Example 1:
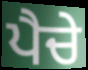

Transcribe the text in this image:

ਪੈਚੇ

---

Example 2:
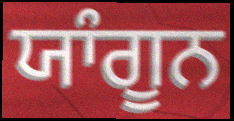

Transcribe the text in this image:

ਯਾੰਗੂਨ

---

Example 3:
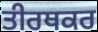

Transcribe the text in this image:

ਤੀਰਥਕਰ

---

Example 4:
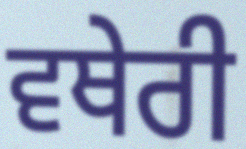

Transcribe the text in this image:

ਵਥੇਰੀ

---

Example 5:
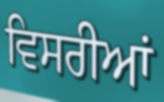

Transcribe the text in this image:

ਵਿਸਰੀਆਂ